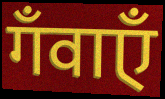
गँवाएँ